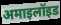
अमाइलॉइड